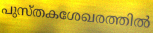
പുസ്തകശേഖരത്തിൽ